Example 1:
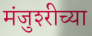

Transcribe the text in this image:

मंजुश्रीच्या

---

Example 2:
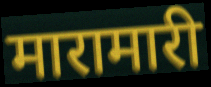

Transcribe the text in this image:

मारामारी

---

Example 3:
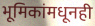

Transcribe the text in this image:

भूमिकांमधूनही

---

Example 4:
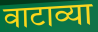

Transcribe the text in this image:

वाटाव्या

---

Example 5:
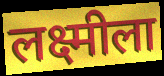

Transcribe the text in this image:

लक्ष्मीला